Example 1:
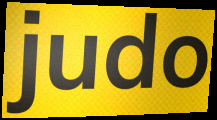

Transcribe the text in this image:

judo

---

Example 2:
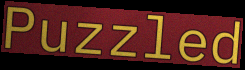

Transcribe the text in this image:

Puzzled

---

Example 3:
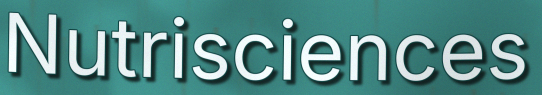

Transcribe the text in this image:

Nutrisciences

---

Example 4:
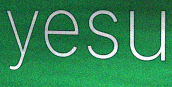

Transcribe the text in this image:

yesu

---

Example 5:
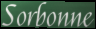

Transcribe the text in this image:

Sorbonne